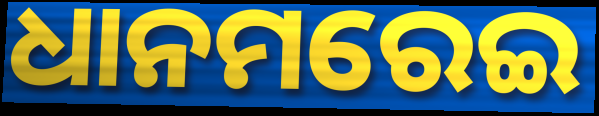
ଧାନମରେଇ